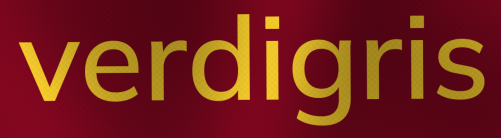
verdigris